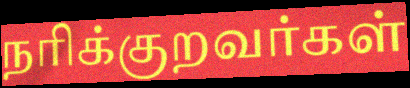
நரிக்குறவர்கள்